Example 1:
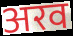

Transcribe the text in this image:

अरव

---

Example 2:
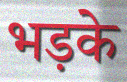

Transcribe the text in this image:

भड़के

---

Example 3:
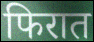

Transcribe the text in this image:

फिरात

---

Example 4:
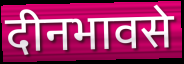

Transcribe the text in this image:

दीनभावसे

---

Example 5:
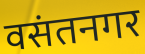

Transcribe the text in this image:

वसंतनगर